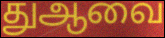
துஆவை